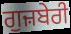
ਗੁਜ਼ਬੇਰੀ